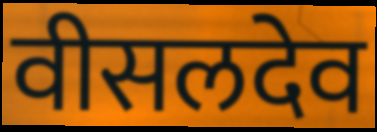
वीसलदेव